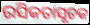
ରସିକତାସୂଚକ